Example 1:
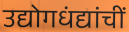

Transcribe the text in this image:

उद्योगधंद्यांचीं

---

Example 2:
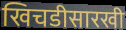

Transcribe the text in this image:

खिचडीसारखी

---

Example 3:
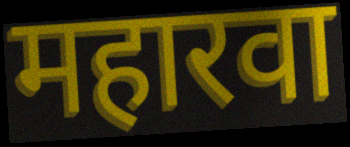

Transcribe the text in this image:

महारवा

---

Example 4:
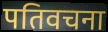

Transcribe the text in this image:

पतिवचना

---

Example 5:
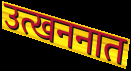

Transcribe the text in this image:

उत्खननात